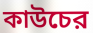
কাউচের